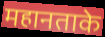
महानताके